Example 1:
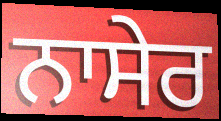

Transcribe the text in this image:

ਨਾਸੇਰ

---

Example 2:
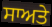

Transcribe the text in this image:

ਸਾਅਤੇ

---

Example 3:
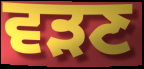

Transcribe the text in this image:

ਵੜਣ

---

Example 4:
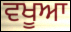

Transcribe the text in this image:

ਵਖੂਆ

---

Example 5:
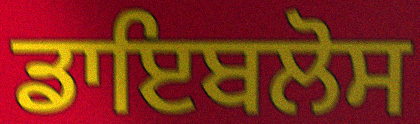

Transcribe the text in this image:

ਡਾਇਬਲੋਸ